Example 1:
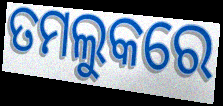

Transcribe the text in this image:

ତମଲୁକରେ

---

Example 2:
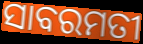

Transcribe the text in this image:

ସାବରମତୀ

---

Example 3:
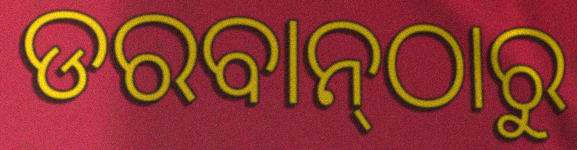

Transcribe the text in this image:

ଡରବାନ୍‌ଠାରୁ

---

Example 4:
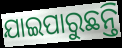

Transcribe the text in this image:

ଯାଇପାରୁଛନ୍ତି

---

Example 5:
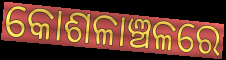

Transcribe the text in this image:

କୋଶଳାଞ୍ଚଳରେ